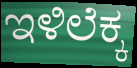
ಇಳಿಲೆಕ್ಕ